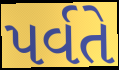
પર્વતે